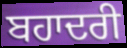
ਬਹਾਦਰੀ